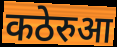
कठेरुआ